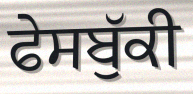
ਫੇਸਬੁੱਕੀ